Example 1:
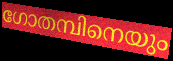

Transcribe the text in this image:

ഗോതമ്പിനെയും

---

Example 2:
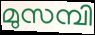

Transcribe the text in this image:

മുസമ്പി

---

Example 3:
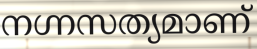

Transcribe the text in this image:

നഗ്നസത്യമാണ്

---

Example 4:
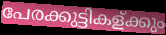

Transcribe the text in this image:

പേരക്കുട്ടികള്ക്കും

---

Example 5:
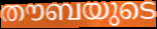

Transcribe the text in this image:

തൗബയുടെ